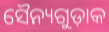
ସୈନ୍ୟଗୁଡ଼ାକ